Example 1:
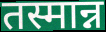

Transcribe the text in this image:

तस्मान्न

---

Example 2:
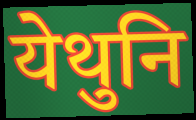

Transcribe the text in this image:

येथुनि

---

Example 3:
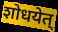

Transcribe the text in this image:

शोधयेत्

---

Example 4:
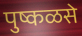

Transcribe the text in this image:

पुष्कळसे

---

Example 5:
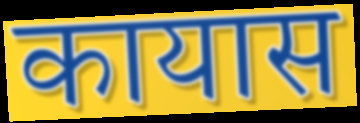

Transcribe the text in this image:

कायास